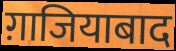
ग़ाजियाबाद